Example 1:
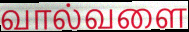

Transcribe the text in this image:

வால்வளை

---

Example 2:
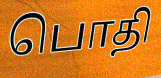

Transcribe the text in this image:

பொதி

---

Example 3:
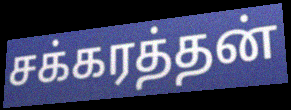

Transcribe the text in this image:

சக்கரத்தன்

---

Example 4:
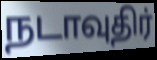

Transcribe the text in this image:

நடாவுதிர்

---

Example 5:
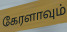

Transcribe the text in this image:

கேரளாவும்